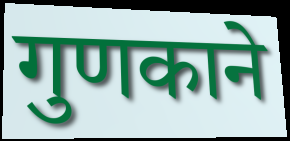
गुणकाने